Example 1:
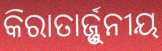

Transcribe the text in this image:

କିରାତାର୍ଜ୍ଜୁନୀୟ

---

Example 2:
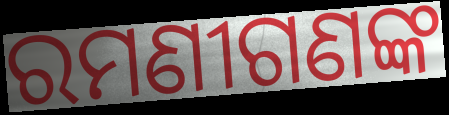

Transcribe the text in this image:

ରମଣୀଗଣଙ୍କ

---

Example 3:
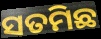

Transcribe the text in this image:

ସତମିଛ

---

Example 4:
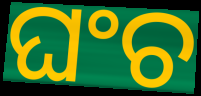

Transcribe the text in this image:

ଘଂଚ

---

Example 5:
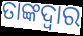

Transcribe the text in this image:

ତାଙ୍କଦ୍ୱାର